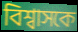
বিশ্বাসকে